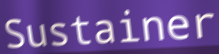
Sustainer